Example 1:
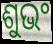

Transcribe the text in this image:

ଶୁଭଂ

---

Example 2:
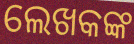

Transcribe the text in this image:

ଲେଖକଙ୍କ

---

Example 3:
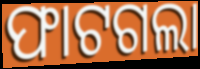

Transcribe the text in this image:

ଫାଟଗଲା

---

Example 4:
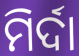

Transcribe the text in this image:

ମିର୍ଦା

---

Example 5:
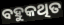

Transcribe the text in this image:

ବହୁକଥିତ